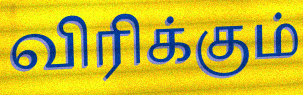
விரிக்கும்